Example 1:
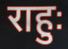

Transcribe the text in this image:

राहुः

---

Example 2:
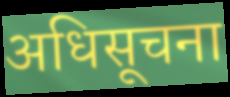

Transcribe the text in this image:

अधिसूचना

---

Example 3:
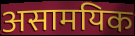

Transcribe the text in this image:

असामयिक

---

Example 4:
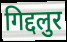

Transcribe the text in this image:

गिद्दलुर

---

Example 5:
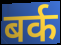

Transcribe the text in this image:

बर्क